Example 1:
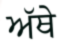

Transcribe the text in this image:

ਅੱਥੇ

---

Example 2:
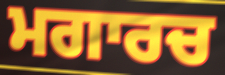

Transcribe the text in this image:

ਮਗਾਰਚ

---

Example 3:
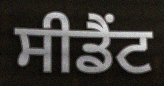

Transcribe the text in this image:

ਸੀਡੈਂਟ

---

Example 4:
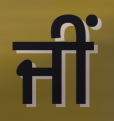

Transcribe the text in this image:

ਜੀਂ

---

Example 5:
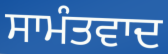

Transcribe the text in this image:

ਸਾਮੰਤਵਾਦ